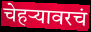
चेहर्‍यावरचं